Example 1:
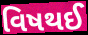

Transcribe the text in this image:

વિષથઈ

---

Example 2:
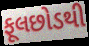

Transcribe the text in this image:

ફૂલછોડથી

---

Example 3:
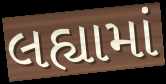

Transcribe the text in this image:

લહ્યામાં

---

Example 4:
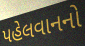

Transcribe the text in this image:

પહેલવાનનો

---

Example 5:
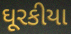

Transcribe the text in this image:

ઘૂરકીયા